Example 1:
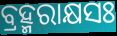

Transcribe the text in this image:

ବ୍ରହ୍ମରାକ୍ଷସଃ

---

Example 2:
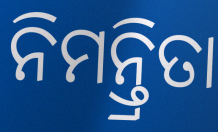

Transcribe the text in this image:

ନିମନ୍ତ୍ରିତା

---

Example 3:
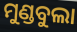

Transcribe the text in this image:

ମୁଣ୍ଡବୁଲା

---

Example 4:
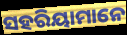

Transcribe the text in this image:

ସହରିୟାମାନେ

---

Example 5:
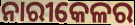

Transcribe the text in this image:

ନାରୀକେଳର